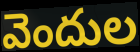
వెందుల